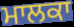
ਮਾਲਕਾ